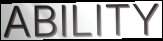
ABILITY